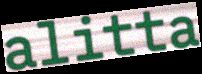
alitta